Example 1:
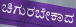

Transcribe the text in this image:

ಚಿಗುರಬೇಕಾದ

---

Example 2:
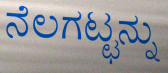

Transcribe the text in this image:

ನೆಲಗಟ್ಟನ್ನು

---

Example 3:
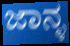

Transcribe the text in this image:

ಜಾನ್ಳ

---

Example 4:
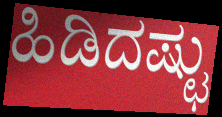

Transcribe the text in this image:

ಹಿಡಿದಷ್ಟು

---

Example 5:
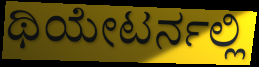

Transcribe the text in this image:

ಥಿಯೇಟರ್ನಲ್ಲಿ